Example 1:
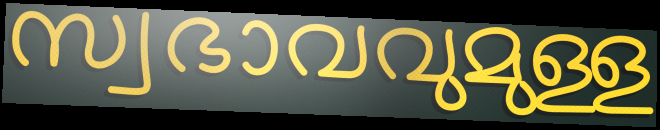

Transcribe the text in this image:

സ്വഭാവവുമുള്ള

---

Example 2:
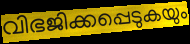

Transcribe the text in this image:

വിഭജിക്കപ്പെടുകയും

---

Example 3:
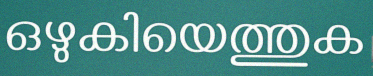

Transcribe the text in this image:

ഒഴുകിയെത്തുക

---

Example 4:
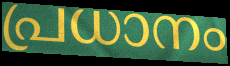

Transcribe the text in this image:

പ്രധാനം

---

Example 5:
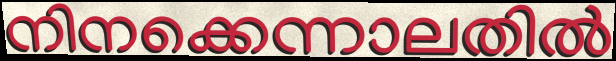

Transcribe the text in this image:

നിനക്കെന്നാലതിൽ